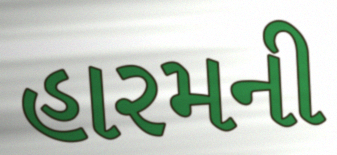
હારમની